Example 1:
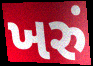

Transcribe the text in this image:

ખરું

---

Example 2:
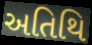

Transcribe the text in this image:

અતિથિ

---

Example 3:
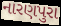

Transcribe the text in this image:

નારણપુરા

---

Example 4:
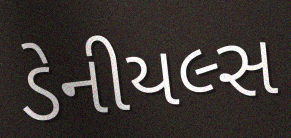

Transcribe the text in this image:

ડેનીયલ્સ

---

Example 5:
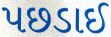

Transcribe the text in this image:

પછડાઈ